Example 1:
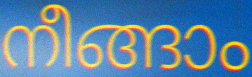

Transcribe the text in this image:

നീങ്ങാം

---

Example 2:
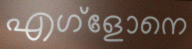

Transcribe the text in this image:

എഗ്ളോനെ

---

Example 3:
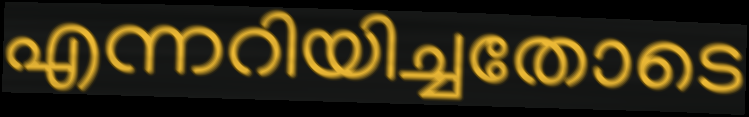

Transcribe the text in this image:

എന്നറിയിച്ചതോടെ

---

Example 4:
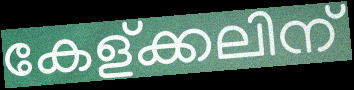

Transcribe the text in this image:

കേള്ക്കലിന്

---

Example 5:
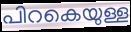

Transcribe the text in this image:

പിറകെയുള്ള